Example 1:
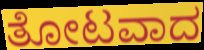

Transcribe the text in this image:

ತೋಟವಾದ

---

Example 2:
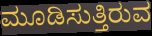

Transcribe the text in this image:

ಮೂಡಿಸುತ್ತಿರುವ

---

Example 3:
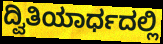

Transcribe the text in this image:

ದ್ವಿತಿಯಾರ್ಧದಲ್ಲಿ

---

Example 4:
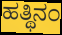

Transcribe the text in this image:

ಹತ್ಥಿನಂ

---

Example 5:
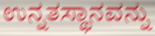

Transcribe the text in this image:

ಉನ್ನತಸ್ಥಾನವನ್ನು